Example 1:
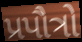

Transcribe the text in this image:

પ્રપૌત્રો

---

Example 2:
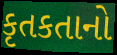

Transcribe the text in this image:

કૃતકતાનો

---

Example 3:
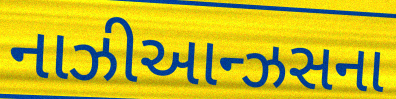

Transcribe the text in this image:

નાઝીઆન્ઝસના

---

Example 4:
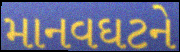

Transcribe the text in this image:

માનવઘટને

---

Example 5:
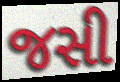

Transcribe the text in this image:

જસી